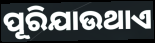
ପୂରିଯାଉଥାଏ